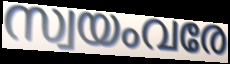
സ്വയംവരേ